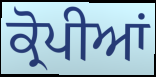
ਕ੍ਰੋਪੀਆਂ